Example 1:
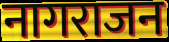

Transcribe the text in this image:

नागराजन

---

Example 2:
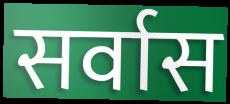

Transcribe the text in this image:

सर्वास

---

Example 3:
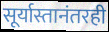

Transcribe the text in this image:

सूर्यास्तानंतरही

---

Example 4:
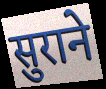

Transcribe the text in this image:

सुराने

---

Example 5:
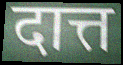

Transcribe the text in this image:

दात्त